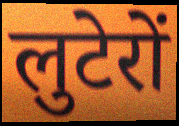
लुटेरों